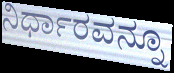
ನಿರ್ಧಾರವನ್ನೂ